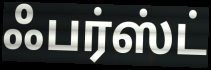
ஃபர்ஸ்ட்